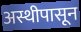
अस्थीपासून